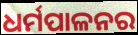
ଧର୍ମପାଳନର